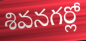
శివనగర్లో